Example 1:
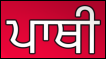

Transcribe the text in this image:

ਪਾਥੀ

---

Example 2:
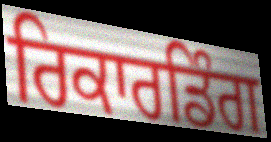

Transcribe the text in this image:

ਰਿਕਾਰਡਿੰਗ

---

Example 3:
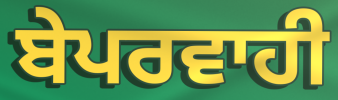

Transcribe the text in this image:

ਬੇਪਰਵਾਹੀ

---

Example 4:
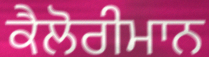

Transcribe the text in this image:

ਕੈਲੋਰੀਮਾਨ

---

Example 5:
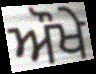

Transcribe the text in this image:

ਔਖੇ